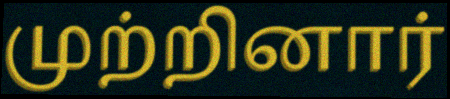
முற்றினார்